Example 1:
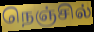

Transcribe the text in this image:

நெஞ்சில்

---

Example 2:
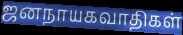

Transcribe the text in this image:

ஜனநாயகவாதிகள்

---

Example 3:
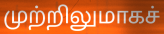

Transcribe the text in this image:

முற்றிலுமாகச்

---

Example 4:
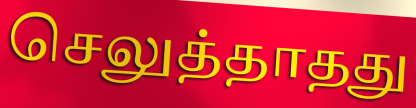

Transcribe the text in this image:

செலுத்தாதது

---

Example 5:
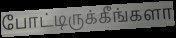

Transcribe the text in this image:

போட்டிருக்கீங்களா